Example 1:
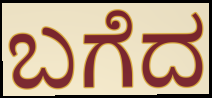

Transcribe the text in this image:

ಬಗೆದ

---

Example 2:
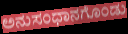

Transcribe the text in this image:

ಅನುಸಂಧಾನಗೊಂಡು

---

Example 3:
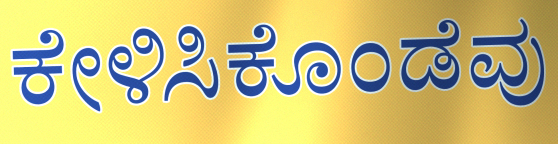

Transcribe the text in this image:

ಕೇಳಿಸಿಕೊಂಡೆವು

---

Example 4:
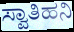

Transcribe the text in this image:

ಸ್ವಾತಿಹನಿ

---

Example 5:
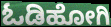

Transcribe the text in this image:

ಓಡಿಹೋಗಿ